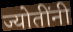
ज्योतींनी